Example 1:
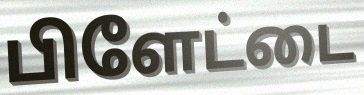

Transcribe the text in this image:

பிளேட்டை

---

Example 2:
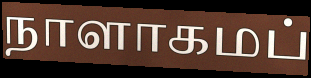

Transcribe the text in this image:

நாளாகமப்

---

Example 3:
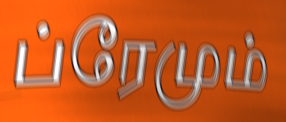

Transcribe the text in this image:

ப்ரேமும்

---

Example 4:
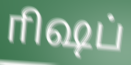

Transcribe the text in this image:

ரிஷப்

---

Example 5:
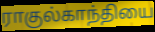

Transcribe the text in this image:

ராகுல்காந்தியை